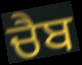
ਚੈਬ